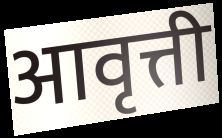
आवृत्ती